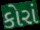
કોરાં